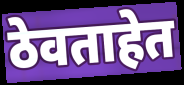
ठेवताहेत